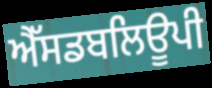
ਐੱਸਡਬਲਿਊਪੀ